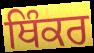
ਥਿੰਕਰ